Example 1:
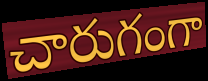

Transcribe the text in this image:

చారుగంగా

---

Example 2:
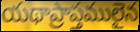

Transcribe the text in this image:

యథాప్రాప్తములైన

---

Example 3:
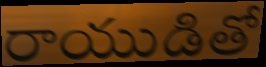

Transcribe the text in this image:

రాయుడితో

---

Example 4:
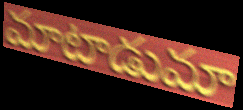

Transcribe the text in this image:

మాటాడుమా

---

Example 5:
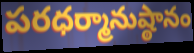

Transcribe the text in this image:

పరధర్మానుష్ఠానం